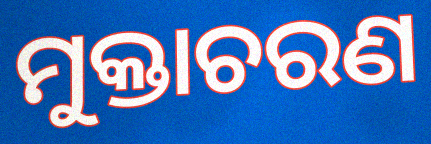
ମୁକ୍ତାଚରଣ